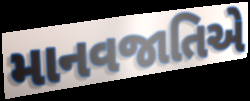
માનવજાતિએ